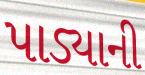
પાડ્યાની